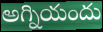
అగ్నియందు